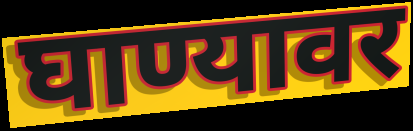
घाण्यावर